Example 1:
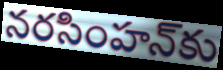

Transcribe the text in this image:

నరసింహన్‌కు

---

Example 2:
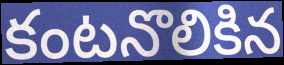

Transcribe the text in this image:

కంటనొలికిన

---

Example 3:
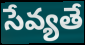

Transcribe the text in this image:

సేవ్యతే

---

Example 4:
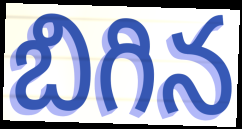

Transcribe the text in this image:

బిగిన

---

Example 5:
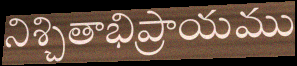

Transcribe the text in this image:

నిశ్చితాభిప్రాయము